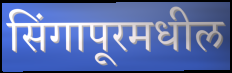
सिंगापूरमधील